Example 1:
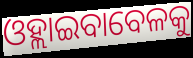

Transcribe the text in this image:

ଓହ୍ଲାଇବାବେଳକୁ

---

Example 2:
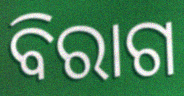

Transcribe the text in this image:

ବିରାଗ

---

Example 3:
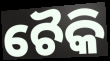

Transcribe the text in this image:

ଚୈକି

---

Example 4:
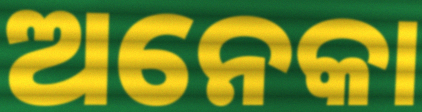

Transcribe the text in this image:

ଅନେକା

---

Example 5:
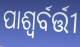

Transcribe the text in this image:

ପାଶ୍ୱର୍ବର୍ତ୍ତୀ